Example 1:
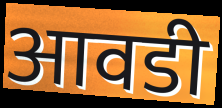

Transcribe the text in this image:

आवडी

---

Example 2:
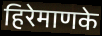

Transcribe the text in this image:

हिरेमाणके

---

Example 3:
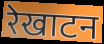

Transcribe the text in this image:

रेखाटन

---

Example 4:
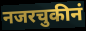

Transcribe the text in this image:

नजरचुकीनं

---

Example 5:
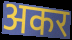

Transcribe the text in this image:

अकर